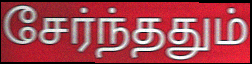
சேர்ந்ததும்